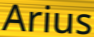
Arius